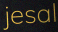
jesal